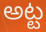
అట్ట